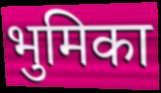
भुमिका